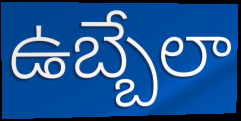
ఉబ్బేలా